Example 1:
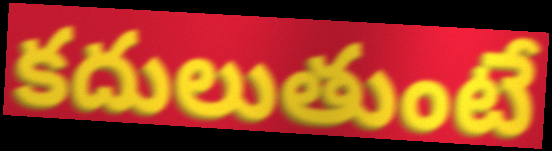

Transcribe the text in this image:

కదులుతుంటే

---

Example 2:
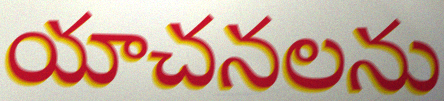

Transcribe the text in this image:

యాచనలను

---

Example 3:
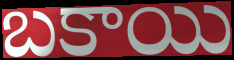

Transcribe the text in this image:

బకాయి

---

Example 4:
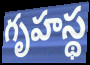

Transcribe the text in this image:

గృహస్థ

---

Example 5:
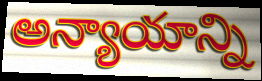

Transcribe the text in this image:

అన్యాయాన్ని